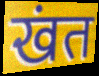
खंत